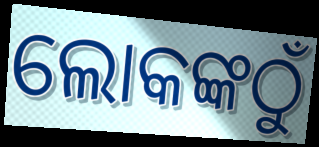
ଲୋକଙ୍କଠୁଁ